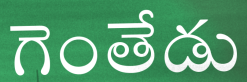
గెంతేడు